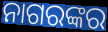
ନାଗରଙ୍କର